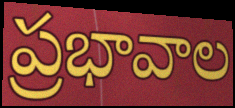
ప్రభావాల